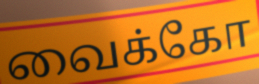
வைக்கோ